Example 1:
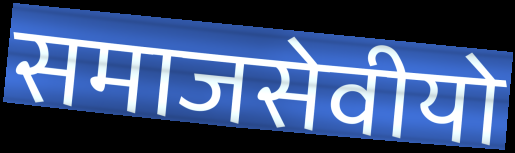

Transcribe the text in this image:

समाजसेवीयो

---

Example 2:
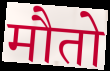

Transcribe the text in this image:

मौतो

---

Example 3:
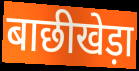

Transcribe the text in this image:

बाछीखेड़ा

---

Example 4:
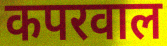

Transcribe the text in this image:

कपरवाल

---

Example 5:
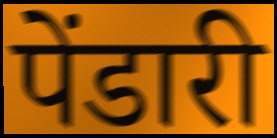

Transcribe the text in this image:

पेंडारी